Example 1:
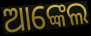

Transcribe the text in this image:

ଆଙ୍କେଲ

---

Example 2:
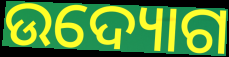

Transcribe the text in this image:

ଉଦ୍ୟୋଗ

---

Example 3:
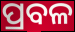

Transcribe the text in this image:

ପ୍ରବଳ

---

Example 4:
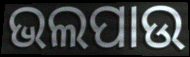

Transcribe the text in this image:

ଭଲପାଉ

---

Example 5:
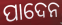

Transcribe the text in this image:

ପାଦେନ